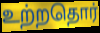
உற்றதொர்